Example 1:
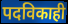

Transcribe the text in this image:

पदविकाही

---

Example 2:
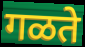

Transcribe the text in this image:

गळते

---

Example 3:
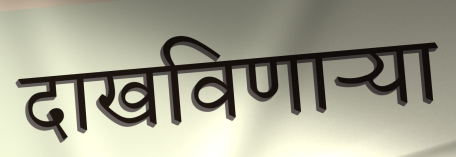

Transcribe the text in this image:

दाखविणाऱ्या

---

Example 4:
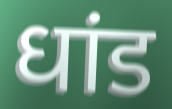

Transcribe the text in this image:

धांड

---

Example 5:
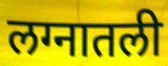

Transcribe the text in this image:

लग्नातली